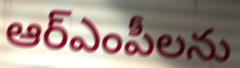
ఆర్ఎంపీలను